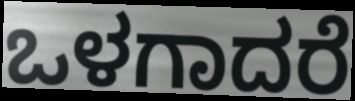
ಒಳಗಾದರೆ